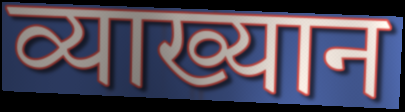
व्याख्यान